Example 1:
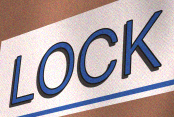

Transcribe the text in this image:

LOCK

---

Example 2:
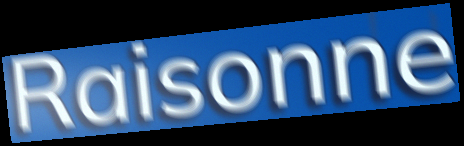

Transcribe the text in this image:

Raisonne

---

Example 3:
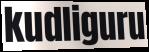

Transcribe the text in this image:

kudliguru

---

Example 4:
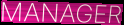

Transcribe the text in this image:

MANAGER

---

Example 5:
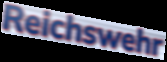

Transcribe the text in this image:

Reichswehr